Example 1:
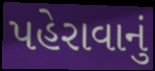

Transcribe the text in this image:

પહેરાવાનું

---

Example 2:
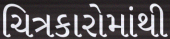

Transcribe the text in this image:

ચિત્રકારોમાંથી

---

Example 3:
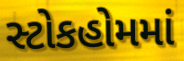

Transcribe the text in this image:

સ્ટોકહોમમાં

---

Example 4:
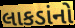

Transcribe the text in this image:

લાકડાંનો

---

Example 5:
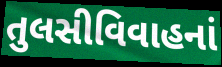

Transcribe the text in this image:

તુલસીવિવાહનાં